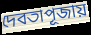
দেবতাপূজায়